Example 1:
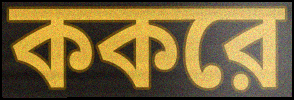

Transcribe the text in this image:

ককরে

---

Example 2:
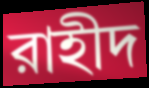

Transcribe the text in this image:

রাহীদ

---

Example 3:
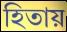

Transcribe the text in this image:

হিতায়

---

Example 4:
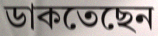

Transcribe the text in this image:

ডাকতেছেন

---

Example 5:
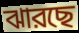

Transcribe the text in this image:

ঝারছে